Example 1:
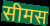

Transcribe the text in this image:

सीमस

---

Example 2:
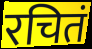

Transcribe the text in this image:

रचितं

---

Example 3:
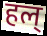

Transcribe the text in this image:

हल्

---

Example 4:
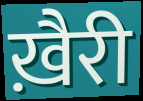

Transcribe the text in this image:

ख़ैरी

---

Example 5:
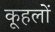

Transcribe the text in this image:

कूहलों